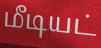
மீடியட்